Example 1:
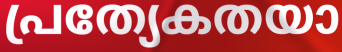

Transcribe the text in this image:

പ്രത്യേകതയാ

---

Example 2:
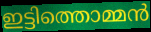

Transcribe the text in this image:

ഇട്ടിത്തൊമ്മൻ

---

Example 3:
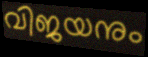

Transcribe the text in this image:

വിജയനും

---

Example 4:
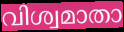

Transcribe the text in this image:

വിശ്വമാതാ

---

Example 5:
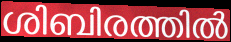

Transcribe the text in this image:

ശിബിരത്തിൽ